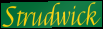
Strudwick